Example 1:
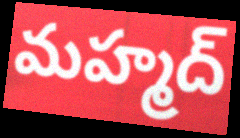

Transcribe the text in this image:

మహ్మద్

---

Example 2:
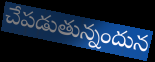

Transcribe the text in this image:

చేపడుతున్నందున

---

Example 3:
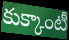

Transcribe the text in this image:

కుక్కాంటీ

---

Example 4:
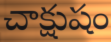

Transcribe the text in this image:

చాక్షుషం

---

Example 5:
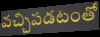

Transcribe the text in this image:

వచ్చిపడటంతో